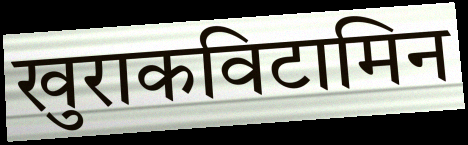
खुराकविटामिन